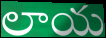
లాయ